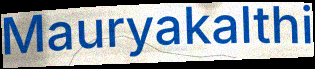
Mauryakalthi